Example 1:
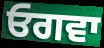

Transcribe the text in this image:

ਓਗਵਾ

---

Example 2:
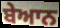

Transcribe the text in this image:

ਬੇਆਨ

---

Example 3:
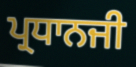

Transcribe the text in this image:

ਪ੍ਰਧਾਨਜੀ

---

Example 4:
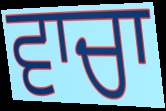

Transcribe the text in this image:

ਵਾਚਾ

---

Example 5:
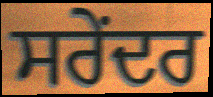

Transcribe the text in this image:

ਸਰੇਂਦਰ